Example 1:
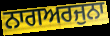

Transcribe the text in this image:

ਨਾਗਅਰਜੁਨਾ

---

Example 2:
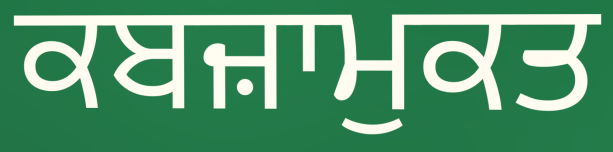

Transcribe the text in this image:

ਕਬਜ਼ਾਮੁਕਤ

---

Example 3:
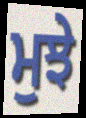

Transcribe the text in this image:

ਮੁਝੇ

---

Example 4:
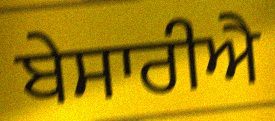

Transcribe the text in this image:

ਬੇਸਾਰੀਐ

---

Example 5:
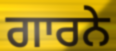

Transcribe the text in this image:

ਗਾਰਨੇ